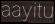
aayitu